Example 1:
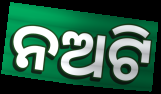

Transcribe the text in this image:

ନଅଟି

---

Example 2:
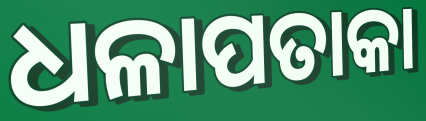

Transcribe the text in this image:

ଧଳାପତାକା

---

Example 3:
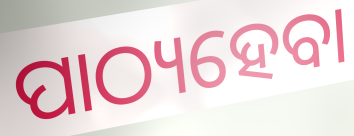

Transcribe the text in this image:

ପାଠ୍ୟହେବା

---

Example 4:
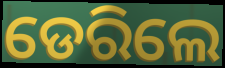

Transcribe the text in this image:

ଡେରିଲେ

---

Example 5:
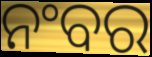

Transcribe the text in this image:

ନଂବର